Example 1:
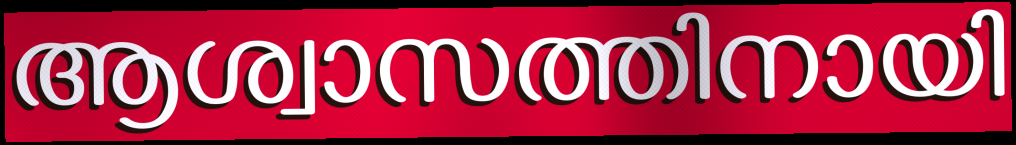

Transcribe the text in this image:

ആശ്വാസത്തിനായി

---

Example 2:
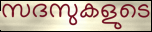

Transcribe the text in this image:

സദസുകളുടെ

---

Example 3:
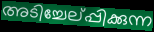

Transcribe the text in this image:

അടിച്ചേല്പ്പിക്കുന്ന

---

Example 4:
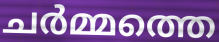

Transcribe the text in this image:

ചർമ്മത്തെ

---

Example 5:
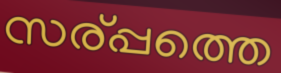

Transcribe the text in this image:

സര്പ്പത്തെ